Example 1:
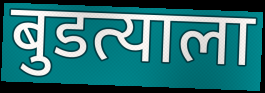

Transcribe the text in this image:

बुडत्याला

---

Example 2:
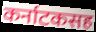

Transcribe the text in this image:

कर्नाटकसह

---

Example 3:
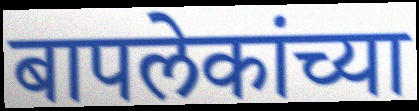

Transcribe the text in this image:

बापलेकांच्या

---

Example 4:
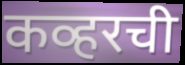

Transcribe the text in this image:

कव्हरची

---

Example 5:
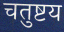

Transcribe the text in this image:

चतुष्टय